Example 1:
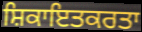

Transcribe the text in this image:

ਸ਼ਿਕਾਇਤਕਰਤਾ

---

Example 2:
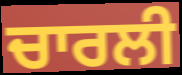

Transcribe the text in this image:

ਚਾਰਲੀ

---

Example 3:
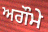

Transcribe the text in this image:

ਅਗੌਮੇ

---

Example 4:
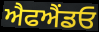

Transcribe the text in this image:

ਐਫਐਂਡਓ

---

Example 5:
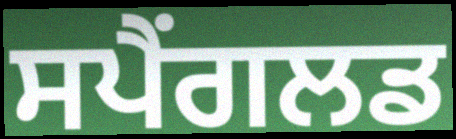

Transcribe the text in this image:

ਸਪੈਂਗਲਡ